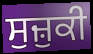
ਸੁਜ਼ੁਕੀ